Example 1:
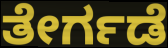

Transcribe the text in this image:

ತೇರ್ಗಡೆ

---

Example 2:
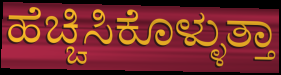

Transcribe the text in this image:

ಹೆಚ್ಚಿಸಿಕೊಳ್ಳುತ್ತಾ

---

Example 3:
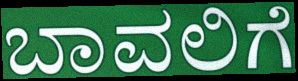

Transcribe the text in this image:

ಬಾವಲಿಗೆ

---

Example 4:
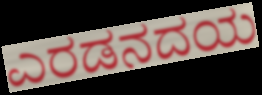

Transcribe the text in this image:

ಎರಡನದಯ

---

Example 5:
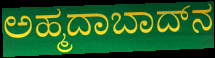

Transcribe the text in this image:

ಅಹ್ಮದಾಬಾದ್‌ನ